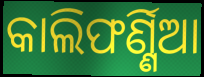
କାଲିଫର୍ଣ୍ଣିଆ